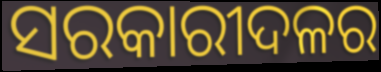
ସରକାରୀଦଳର